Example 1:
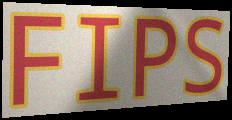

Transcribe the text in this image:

FIPS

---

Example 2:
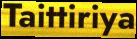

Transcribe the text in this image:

Taittiriya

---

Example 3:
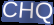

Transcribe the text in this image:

CHQ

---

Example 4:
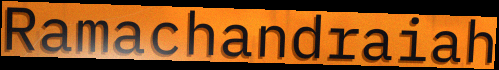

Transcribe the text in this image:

Ramachandraiah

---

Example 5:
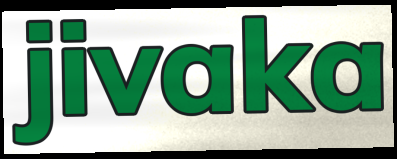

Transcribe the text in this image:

jivaka